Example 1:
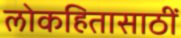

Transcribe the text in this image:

लोकहितासाठीं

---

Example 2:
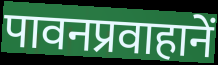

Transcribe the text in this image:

पावनप्रवाहानें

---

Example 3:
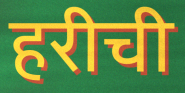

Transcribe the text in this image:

हरीची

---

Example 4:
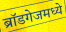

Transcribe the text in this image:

ब्रॉडगेजमध्ये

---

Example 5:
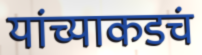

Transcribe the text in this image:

यांच्याकडचं